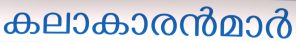
കലാകാരൻമാർ